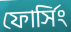
ফোর্সিং